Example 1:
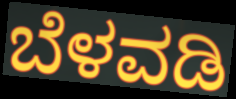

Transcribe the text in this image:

ಬೆಳವಡಿ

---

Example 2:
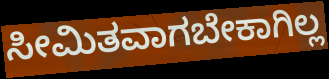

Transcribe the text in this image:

ಸೀಮಿತವಾಗಬೇಕಾಗಿಲ್ಲ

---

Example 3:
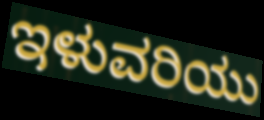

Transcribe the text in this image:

ಇಳುವರಿಯು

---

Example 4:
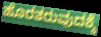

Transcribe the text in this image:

ಹೊರತರುವುದಕ್ಕೆ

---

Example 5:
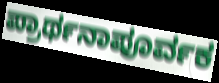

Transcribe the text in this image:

ಪ್ರಾರ್ಥನಾಪೂರ್ವಕ